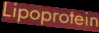
Lipoprotein